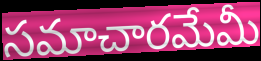
సమాచారమేమీ